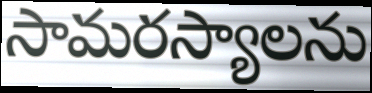
సామరస్యాలను